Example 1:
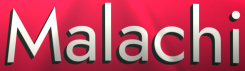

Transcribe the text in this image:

Malachi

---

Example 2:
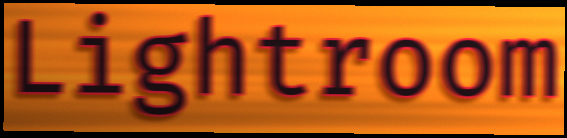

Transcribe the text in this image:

Lightroom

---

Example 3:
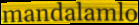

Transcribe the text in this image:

mandalamlo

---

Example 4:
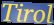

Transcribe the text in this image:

Tirol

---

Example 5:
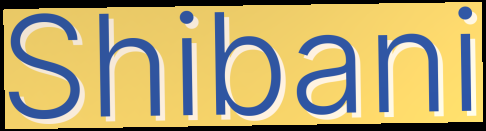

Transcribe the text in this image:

Shibani